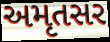
અમૃતસર